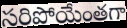
సరిపోయేంతగా